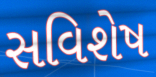
સવિશેષ